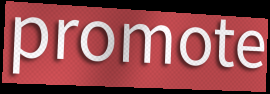
promote